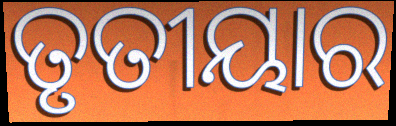
ତୃତୀୟାର